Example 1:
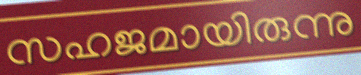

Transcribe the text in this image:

സഹജമായിരുന്നു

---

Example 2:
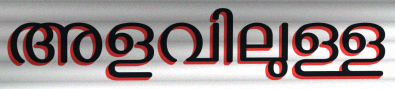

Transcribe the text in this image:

അളവിലുള്ള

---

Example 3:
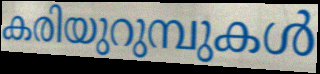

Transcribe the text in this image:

കരിയുറുമ്പുകൾ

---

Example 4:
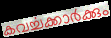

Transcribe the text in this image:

കവൎച്ചക്കാർക്കും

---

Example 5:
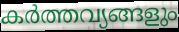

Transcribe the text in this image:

കർത്തവ്യങ്ങളും